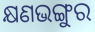
କ୍ଷଣଭଙ୍ଗୁର